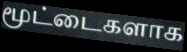
மூட்டைகளாக